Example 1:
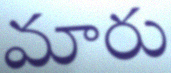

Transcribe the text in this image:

మారు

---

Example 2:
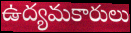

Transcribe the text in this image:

ఉద్యమకారులు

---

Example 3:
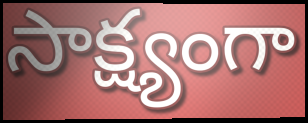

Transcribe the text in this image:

సాక్ష్యంగా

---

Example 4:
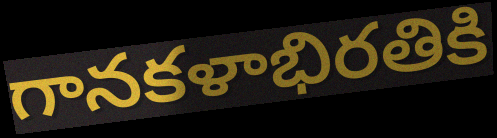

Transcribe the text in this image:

గానకళాభిరతికి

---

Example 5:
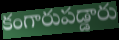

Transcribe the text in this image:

కంగారుపడ్డారు